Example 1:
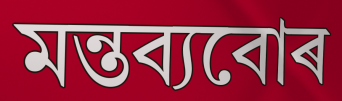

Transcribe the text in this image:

মন্তব্যবোৰ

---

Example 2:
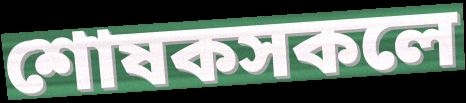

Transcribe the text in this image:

শোষকসকলে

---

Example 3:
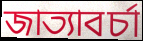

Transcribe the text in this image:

জাত্যাবৰ্চা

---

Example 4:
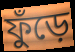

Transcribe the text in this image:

ফুঁড়ে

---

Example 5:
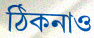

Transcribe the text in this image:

ঠিকনাও